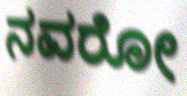
ನವರೋ